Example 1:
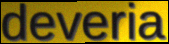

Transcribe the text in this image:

deveria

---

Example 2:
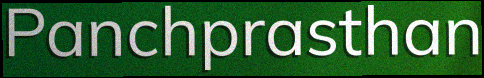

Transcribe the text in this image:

Panchprasthan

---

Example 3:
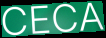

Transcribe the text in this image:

CECA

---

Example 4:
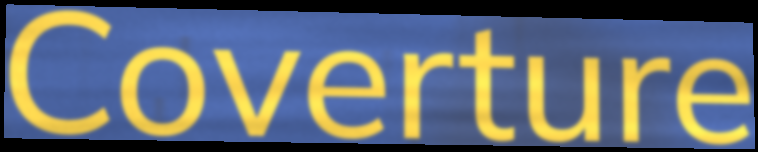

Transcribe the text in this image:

Coverture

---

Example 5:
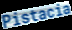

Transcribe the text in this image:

Pistacia